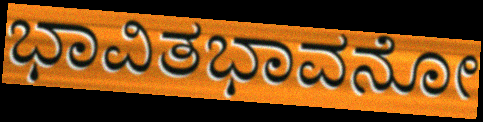
ಭಾವಿತಭಾವನೋ